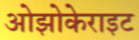
ओझोकेराइट